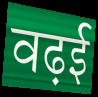
वढ़ई